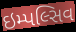
ઇમ્પલ્સિવ